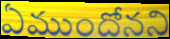
ఏముందోనని